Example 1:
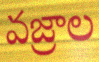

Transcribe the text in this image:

వజ్రాల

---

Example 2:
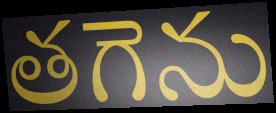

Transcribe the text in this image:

తగెను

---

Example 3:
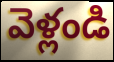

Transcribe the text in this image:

వెళ్లండి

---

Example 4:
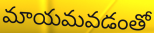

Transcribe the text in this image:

మాయమవడంతో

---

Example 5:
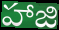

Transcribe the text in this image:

హాజి